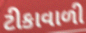
ટીકાવાળી